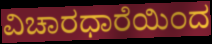
ವಿಚಾರಧಾರೆಯಿಂದ